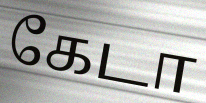
கேடா